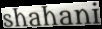
shahani